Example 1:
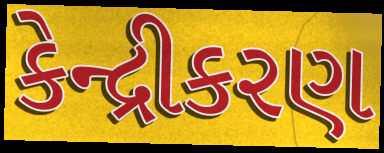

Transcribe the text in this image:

કેન્દ્રીકરણ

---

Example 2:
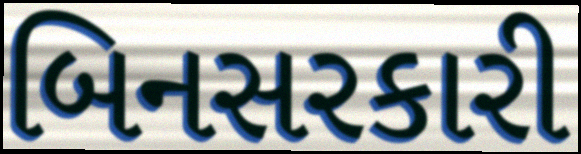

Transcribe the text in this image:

બિનસરકારી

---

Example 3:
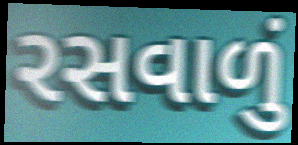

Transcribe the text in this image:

રસવાળું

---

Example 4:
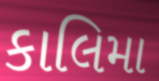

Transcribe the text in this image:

કાલિમા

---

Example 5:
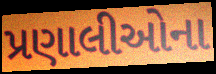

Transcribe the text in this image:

પ્રણાલીઓના